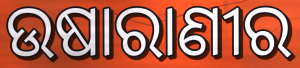
ଉଷାରାଣୀର